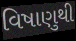
વિષાણુથી